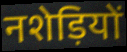
नशेड़ियों